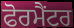
ਫੋਰਮੈਂਟਰ